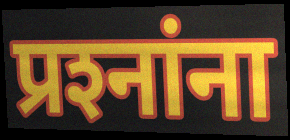
प्रश्‍नांना